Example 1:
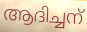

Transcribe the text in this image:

ആദിച്ചന്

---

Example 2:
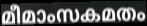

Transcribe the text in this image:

മീമാംസകമതം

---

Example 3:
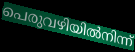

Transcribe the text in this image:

പെരുവഴിയിൽനിന്ന്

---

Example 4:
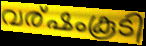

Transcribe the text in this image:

വര്ഷംകൂടി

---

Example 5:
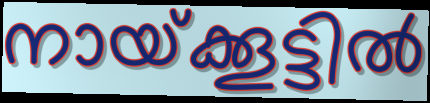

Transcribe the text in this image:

നായ്‌ക്കൂട്ടിൽ